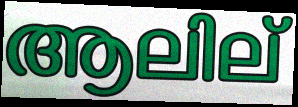
ആലില്